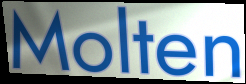
Molten